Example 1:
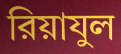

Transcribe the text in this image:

রিয়াযুল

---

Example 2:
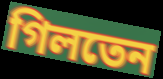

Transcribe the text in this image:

গিলতেন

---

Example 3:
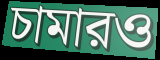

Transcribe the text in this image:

চামারও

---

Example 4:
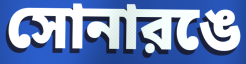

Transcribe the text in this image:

সোনারঙে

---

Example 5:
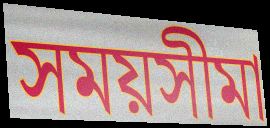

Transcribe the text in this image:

সময়সীমা